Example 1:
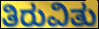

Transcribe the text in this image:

ತಿರುವಿತು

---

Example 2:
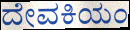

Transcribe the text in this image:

ದೇವಕಿಯಂ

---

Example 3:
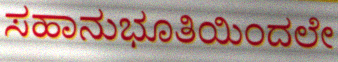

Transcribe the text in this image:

ಸಹಾನುಭೂತಿಯಿಂದಲೇ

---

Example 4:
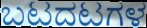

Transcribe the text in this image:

ಬಟದಟಗಳ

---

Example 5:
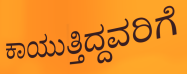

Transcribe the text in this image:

ಕಾಯುತ್ತಿದ್ದವರಿಗೆ